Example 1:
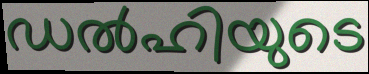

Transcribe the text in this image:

ഡൽഹിയുടെ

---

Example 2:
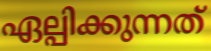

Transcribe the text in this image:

ഏല്പിക്കുന്നത്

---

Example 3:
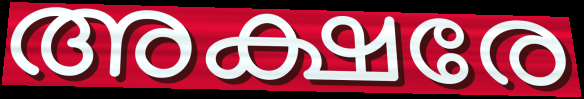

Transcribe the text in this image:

അക്ഷരേ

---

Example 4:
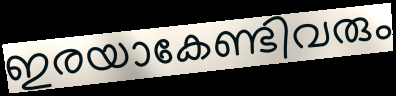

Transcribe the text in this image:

ഇരയാകേണ്ടിവരും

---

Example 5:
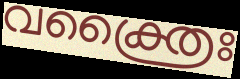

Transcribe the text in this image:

വക്ത്രൈഃ